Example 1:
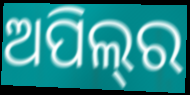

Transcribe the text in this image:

ଅପିଲ୍‍ର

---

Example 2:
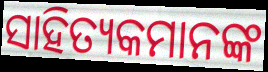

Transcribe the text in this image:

ସାହିତ୍ୟକମାନଙ୍କ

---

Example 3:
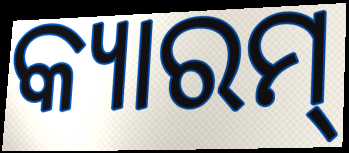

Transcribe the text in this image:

କ୍ୟାରମ୍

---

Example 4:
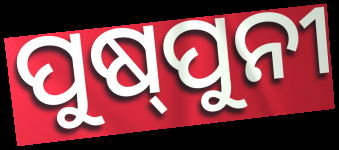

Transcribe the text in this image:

ପୁଷ୍‌ପୁନୀ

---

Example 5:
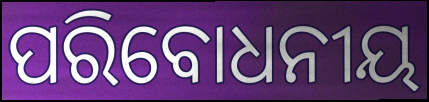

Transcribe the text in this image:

ପରିବୋଧନୀୟ